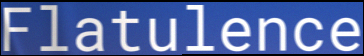
Flatulence